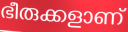
ഭീരുക്കളാണ്